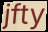
jfty